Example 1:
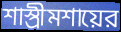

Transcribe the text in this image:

শাস্ত্রীমশায়ের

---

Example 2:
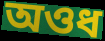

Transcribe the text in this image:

অওধ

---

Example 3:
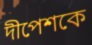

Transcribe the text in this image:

দীপেশকে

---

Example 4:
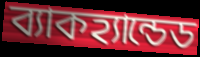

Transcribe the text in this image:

ব্যাকহ্যান্ডেড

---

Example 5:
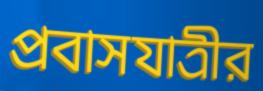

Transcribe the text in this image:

প্রবাসযাত্রীর